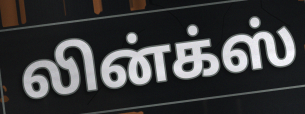
லின்க்ஸ்